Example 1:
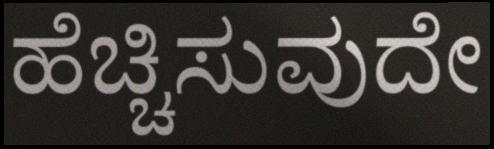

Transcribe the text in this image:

ಹೆಚ್ಚಿಸುವುದೇ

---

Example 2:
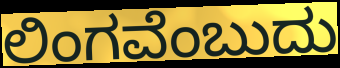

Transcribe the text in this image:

ಲಿಂಗವೆಂಬುದು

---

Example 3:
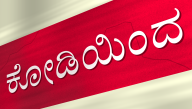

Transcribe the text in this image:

ಕೋಡಿಯಿಂದ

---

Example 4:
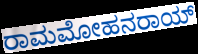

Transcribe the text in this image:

ರಾಮಮೋಹನರಾಯ್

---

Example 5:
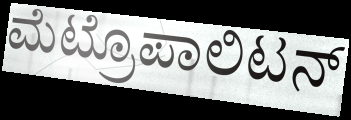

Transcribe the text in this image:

ಮೆಟ್ರೊಪಾಲಿಟನ್